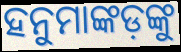
ହନୁମାଙ୍କଡ଼ଙ୍କୁ